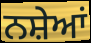
ਨਸ਼ੇਆਂ